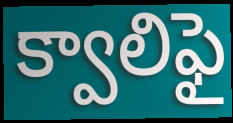
క్వాలిఫై